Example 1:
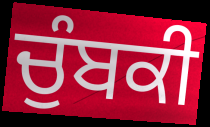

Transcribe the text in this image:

ਚੁੰਬਕੀ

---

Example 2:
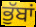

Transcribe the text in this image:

ਭੁੱਬਾਂ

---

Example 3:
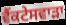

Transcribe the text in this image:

ਵੈਂਕਟੇਸਵਾੜਾ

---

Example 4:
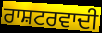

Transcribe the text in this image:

ਰਾਸ਼ਟਰਵਾਦੀ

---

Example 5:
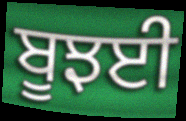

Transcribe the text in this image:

ਬੂਝਈ